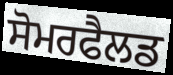
ਸੋਮਰਫੈਲਡ